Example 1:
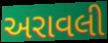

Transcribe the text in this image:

અરાવલી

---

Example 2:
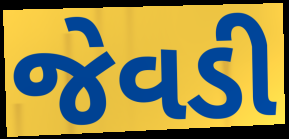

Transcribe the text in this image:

જેવડી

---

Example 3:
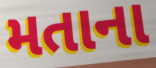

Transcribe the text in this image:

મતાના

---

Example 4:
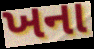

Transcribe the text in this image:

ખના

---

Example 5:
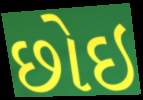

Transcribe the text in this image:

છોઇ